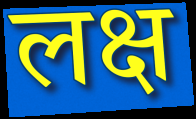
लक्ष